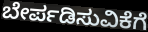
ಬೇರ್ಪಡಿಸುವಿಕೆಗೆ